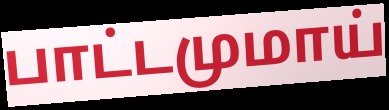
பாட்டமுமாய்